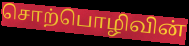
சொற்பொழிவின்